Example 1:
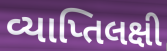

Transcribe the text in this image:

વ્યાપ્તિલક્ષી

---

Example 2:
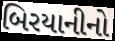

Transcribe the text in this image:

બિરયાનીનો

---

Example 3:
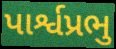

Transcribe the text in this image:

પાર્શ્વપ્રભુ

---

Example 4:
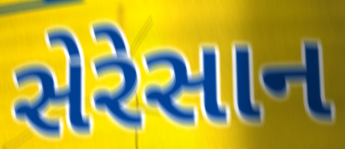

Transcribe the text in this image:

સેરેસાન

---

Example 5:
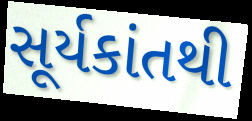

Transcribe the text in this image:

સૂર્યકાંતથી